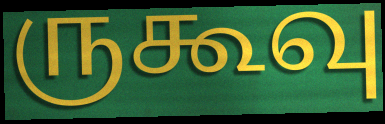
ருகூவு